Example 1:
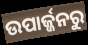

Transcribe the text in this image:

ଉପାର୍ଜ୍ଜନରୁ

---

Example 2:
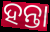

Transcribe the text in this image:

ହନ୍ତା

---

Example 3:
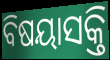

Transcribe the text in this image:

ବିଷୟାସକ୍ତି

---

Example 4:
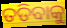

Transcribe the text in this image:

ତଡିବାକୁ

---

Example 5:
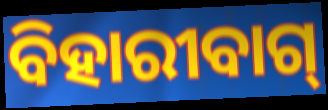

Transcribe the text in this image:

ବିହାରୀବାଗ୍